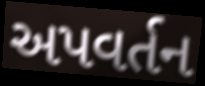
અપવર્તન